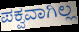
ಪಕ್ವವಾಗಿಲ್ಲ